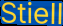
Stiell